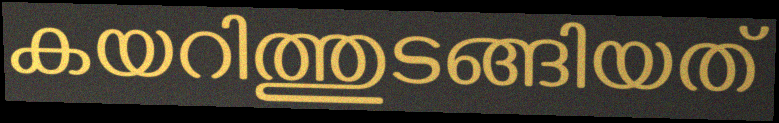
കയറിത്തുടങ്ങിയത്